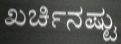
ಖರ್ಚಿನಷ್ಟು